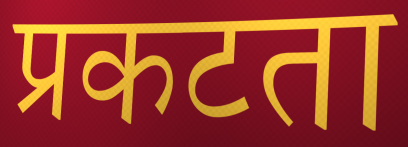
प्रकटता